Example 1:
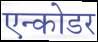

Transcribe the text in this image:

एन्कोडर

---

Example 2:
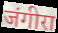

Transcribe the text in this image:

जंगीरा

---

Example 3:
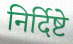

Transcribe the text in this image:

निर्दिष्टे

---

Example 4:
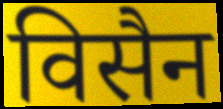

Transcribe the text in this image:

विसैन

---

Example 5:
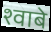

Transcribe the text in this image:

श्वाबे